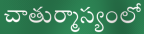
చాతుర్మాస్యంలో